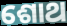
ଶୋଥ